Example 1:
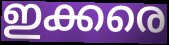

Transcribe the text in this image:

ഇക്കരെ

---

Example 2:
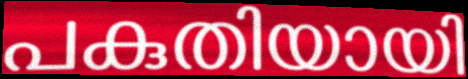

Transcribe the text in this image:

പകുതിയായി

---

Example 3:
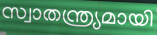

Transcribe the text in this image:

സ്വാതന്ത്ര്യമായി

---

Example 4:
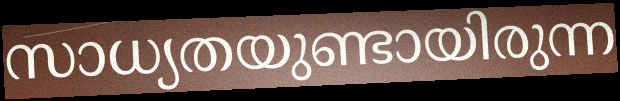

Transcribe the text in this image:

സാധ്യതയുണ്ടായിരുന്ന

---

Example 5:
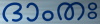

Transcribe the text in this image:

ദാംതഃ